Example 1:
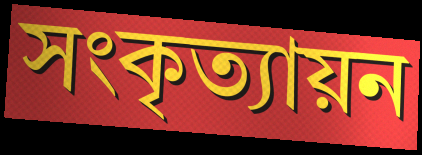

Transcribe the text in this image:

সংকৃত্যায়ন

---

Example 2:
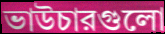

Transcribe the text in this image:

ভাউচারগুলো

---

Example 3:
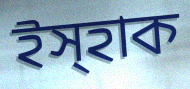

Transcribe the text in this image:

ইস্‌হাক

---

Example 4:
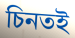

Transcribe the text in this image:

চিনতই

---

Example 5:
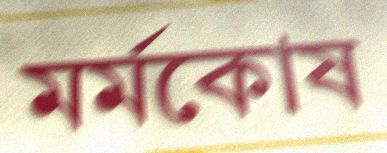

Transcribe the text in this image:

মর্মকোষ